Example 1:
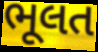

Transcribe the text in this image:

ભૂલત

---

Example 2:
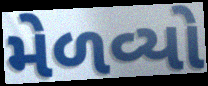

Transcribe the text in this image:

મેળવ્યો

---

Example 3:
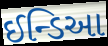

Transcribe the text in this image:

ઈન્ડિઆ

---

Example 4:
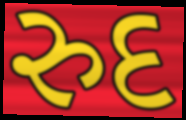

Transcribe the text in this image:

રુદ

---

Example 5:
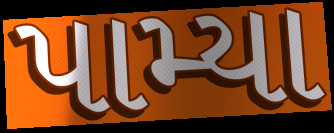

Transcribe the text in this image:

પામ્યા